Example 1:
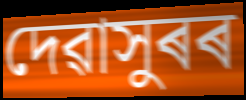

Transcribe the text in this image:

দেৱাসুৰৰ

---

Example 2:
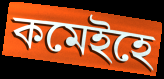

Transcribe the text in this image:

কমেইহে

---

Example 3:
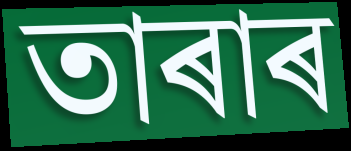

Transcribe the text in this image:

তাৰাৰ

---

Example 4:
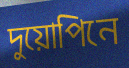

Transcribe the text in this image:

দুয়োপিনে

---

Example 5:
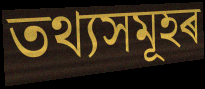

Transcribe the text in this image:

তথ্যসমূহৰ